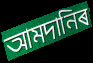
আমদানিৰ